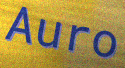
Auro